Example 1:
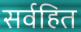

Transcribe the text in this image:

सर्वहित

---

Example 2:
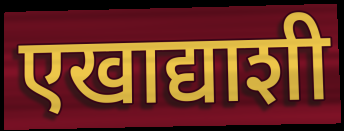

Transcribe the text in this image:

एखाद्याशी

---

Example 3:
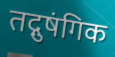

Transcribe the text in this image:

तद्नुषंगिक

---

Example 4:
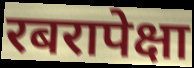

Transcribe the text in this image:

रबरापेक्षा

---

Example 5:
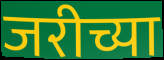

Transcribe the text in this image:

जरीच्या